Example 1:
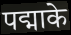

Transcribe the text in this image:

पद्माके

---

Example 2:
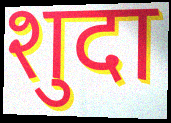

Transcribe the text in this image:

शुदा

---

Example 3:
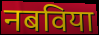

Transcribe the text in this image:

नबविया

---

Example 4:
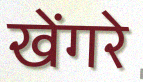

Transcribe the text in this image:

खेंगरे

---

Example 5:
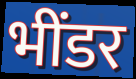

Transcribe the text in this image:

भींडर